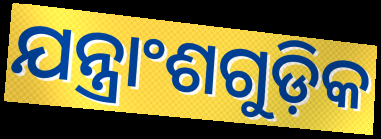
ଯନ୍ତ୍ରାଂଶଗୁଡ଼ିକ